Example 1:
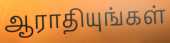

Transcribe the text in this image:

ஆராதியுங்கள்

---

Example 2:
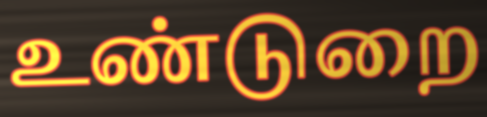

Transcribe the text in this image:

உண்டுறை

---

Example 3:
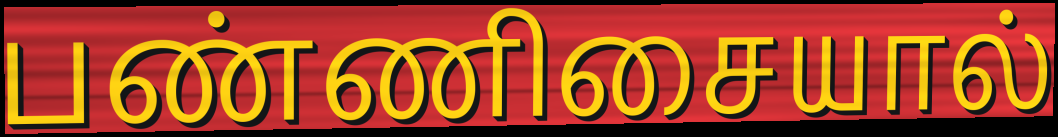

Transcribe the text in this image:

பண்ணிசையால்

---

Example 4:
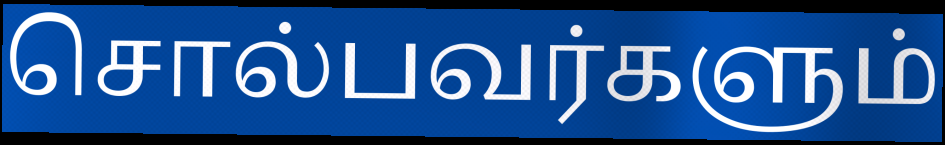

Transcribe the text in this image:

சொல்பவர்களும்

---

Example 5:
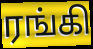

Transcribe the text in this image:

ரங்கி